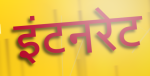
इंटनरेट